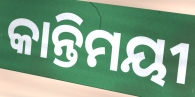
କାନ୍ତିମୟୀ